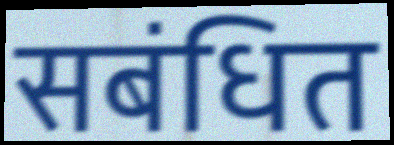
सबंधित